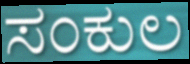
ಸಂಕುಲ